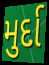
મુર્દા